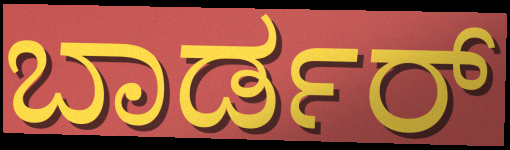
ಬಾರ್ಡರ್